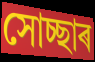
সোচ্ছাৰ